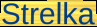
Strelka